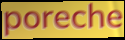
poreche